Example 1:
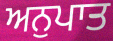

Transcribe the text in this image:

ਅਨੁਪਾਤ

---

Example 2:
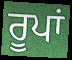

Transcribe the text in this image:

ਰੂਪਾਂ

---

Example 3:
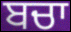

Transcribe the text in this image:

ਬਚਾ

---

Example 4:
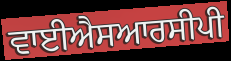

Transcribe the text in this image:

ਵਾਈਐਸਆਰਸੀਪੀ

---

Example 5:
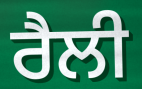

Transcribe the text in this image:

ਰੈਲੀ